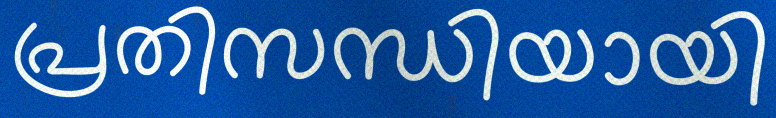
പ്രതിസന്ധിയായി